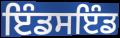
ਇੰਡਸਇੰਡ